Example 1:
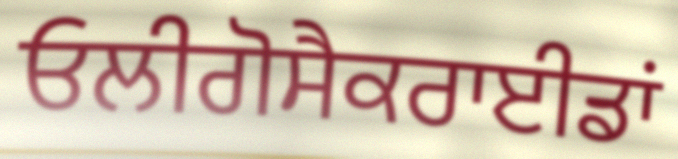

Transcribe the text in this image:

ਓਲੀਗੋਸੈਕਰਾਈਡਾਂ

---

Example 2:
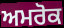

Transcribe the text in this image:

ਅਮਰੋਕ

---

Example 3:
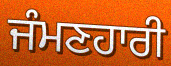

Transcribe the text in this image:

ਜੰਮਣਹਾਰੀ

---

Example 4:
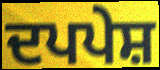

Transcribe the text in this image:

ਦਪਪੇਸ਼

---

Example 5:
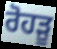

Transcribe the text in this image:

ਰੋਹੜੂ